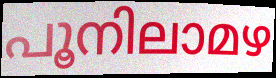
പൂനിലാമഴ